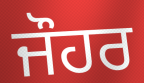
ਜੌਹਰ